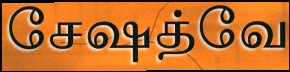
சேஷத்வே